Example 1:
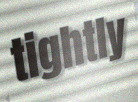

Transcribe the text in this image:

tightly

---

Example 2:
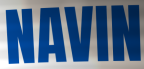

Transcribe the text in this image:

NAVIN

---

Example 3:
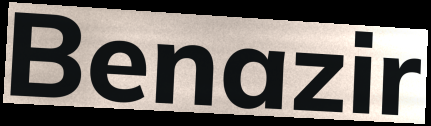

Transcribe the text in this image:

Benazir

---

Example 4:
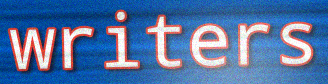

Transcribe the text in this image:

writers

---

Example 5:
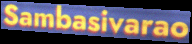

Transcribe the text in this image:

Sambasivarao